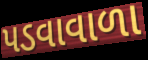
પડવાવાળા